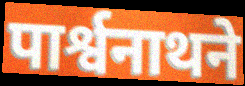
पार्श्वनाथने